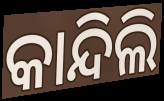
କାନ୍ଦିଲି